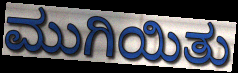
ಮುಗಿಯಿತು